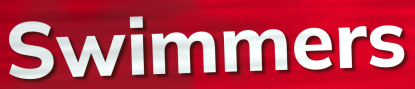
Swimmers